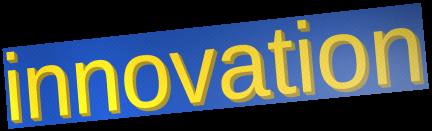
innovation